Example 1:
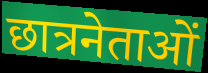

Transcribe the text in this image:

छात्रनेताओं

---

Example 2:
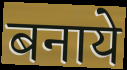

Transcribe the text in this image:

बनाये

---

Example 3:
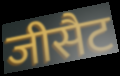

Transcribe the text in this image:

जीसैट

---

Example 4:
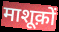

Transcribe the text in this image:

माशूक़ों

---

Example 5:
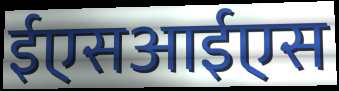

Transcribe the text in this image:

ईएसआईएस